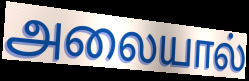
அலையால்